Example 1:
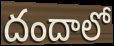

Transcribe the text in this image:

దందాలో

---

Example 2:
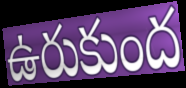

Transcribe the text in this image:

ఉరుకుంద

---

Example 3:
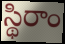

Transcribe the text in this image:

స్థిరాం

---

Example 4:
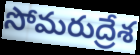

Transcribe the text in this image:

సోమరుద్రేశ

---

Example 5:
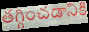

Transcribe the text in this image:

తగ్గించడానికి